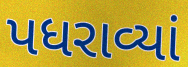
પધરાવ્યાં